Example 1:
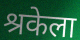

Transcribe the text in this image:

श्रकेला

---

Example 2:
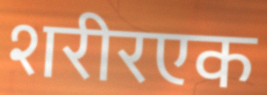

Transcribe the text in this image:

शरीरएक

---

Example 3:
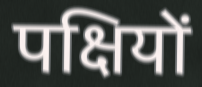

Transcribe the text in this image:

पक्षियों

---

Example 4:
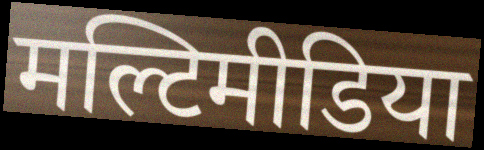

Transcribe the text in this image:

मल्टिमीडिया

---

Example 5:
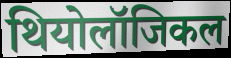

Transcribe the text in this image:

थियोलॉजिकल